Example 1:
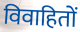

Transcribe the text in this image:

विवाहितों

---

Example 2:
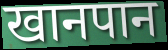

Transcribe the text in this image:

खानपान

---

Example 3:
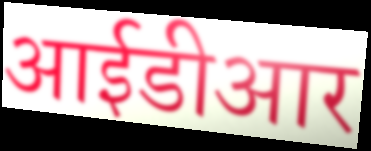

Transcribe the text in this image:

आईडीआर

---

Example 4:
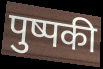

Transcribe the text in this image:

पुष्पकी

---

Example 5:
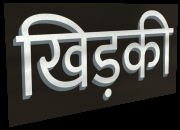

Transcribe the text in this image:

खिड़की